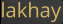
lakhay